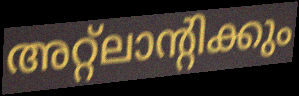
അറ്റ്ലാന്റിക്കും